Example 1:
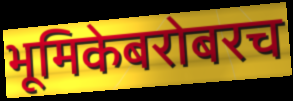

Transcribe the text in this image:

भूमिकेबरोबरच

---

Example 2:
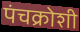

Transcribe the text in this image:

पंचक्रोशी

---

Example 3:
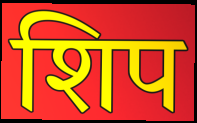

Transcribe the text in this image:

शिप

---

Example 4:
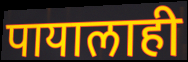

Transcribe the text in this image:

पायालाही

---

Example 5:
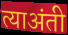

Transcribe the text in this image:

त्याअंती